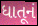
ધાતૂનં